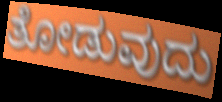
ತೋಡುವುದು